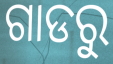
ଗାଡରୁ